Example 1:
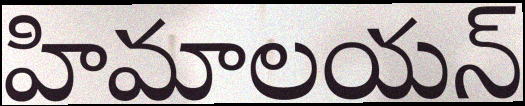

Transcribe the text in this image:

హిమాలయన్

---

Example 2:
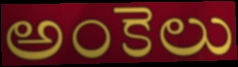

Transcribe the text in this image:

అంకెలు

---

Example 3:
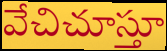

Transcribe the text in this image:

వేచిచూస్తూ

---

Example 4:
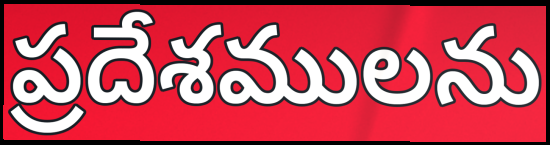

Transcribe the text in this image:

ప్రదేశములను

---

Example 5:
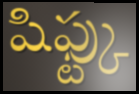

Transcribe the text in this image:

షిఫ్ట్కు